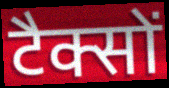
टैक्सों